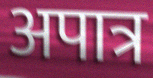
अपात्र